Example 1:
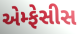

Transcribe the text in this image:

એમ્ફેસીસ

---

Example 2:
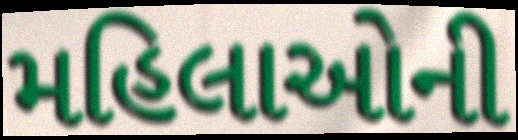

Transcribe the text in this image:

મહિલાઓની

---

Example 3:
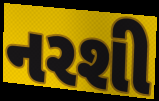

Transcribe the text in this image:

નરશી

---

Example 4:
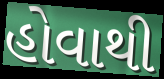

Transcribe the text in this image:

હોવાથી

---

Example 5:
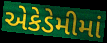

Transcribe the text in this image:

એકેડેમીમાં